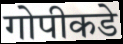
गोपीकडे